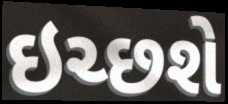
ઇચ્છશે